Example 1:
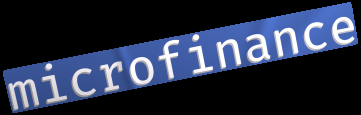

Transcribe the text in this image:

microfinance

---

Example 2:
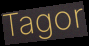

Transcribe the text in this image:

Tagor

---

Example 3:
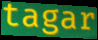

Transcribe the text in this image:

tagar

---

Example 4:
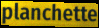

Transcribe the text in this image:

planchette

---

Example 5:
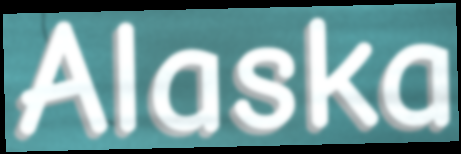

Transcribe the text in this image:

Alaska